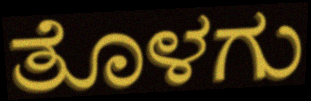
ತೊಳಗು